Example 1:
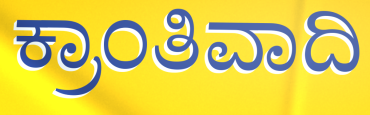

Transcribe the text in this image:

ಕ್ರಾಂತಿವಾದಿ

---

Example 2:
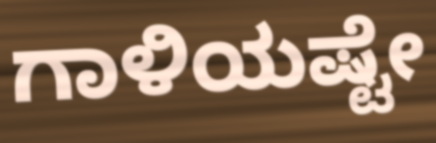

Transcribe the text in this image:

ಗಾಳಿಯಷ್ಟೇ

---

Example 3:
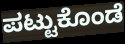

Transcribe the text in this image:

ಪಟ್ಟುಕೊಂಡೆ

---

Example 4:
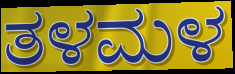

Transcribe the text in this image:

ತಳಮಳ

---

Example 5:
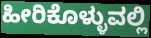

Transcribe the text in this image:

ಹೀರಿಕೊಳ್ಳುವಲ್ಲಿ